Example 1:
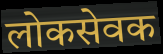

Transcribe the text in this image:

लोकसेवक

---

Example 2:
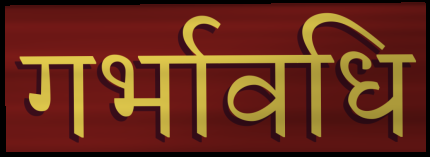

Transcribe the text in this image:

गर्भावधि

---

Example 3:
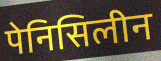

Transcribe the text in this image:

पेनिसिलीन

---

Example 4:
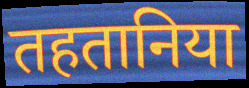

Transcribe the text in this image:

तहतानिया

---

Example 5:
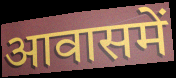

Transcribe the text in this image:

आवासमें